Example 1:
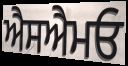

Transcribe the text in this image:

ਐਸਐਮਓ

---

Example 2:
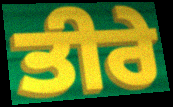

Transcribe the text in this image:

ਤੀਰੇ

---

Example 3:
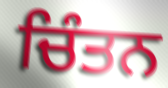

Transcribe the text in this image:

ਚਿੰਤਨ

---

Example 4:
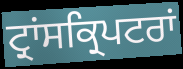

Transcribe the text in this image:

ਟ੍ਰਾਂਸਕ੍ਰਿਪਟਰਾਂ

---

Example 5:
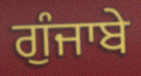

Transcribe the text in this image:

ਗੁੰਜਾਬੇ